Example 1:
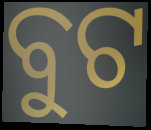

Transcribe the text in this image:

ବୁଟ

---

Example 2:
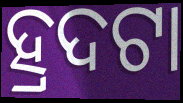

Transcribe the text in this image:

ହ୍ରଦଟା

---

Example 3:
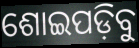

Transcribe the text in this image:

ଶୋଇପଡ଼ିବୁ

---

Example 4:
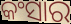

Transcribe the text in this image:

କଂସାର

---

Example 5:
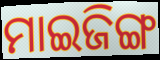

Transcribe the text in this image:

ମାଇଜିଙ୍ଗ